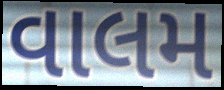
વાલમ